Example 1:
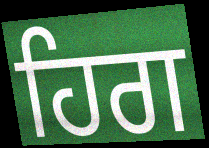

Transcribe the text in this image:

ਹਿਗ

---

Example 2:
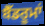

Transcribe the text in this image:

ਬੈੱਡਰੂਮਾਂ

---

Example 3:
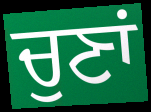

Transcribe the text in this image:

ਚੁਣਾਂ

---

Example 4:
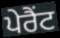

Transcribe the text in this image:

ਪੇਰੈਂਟ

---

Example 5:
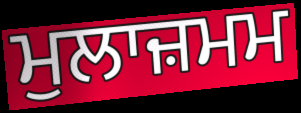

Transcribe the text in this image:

ਮੁਲਾਜ਼ਮਮ